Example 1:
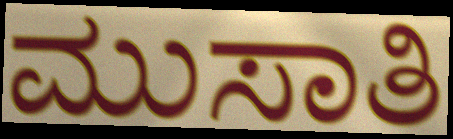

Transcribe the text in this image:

ಮುಸಾತಿ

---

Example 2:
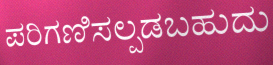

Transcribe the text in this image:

ಪರಿಗಣಿಸಲ್ಪಡಬಹುದು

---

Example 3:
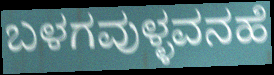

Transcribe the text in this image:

ಬಳಗವುಳ್ಳವನಹೆ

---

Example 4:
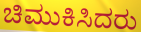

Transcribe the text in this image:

ಚಿಮುಕಿಸಿದರು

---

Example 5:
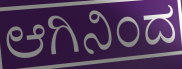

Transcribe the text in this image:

ಆಗಿನಿಂದ